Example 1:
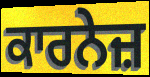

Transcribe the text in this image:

ਕਾਰਨੇਜ਼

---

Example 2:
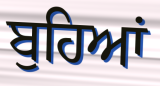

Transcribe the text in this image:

ਬੁਹਿਆਂ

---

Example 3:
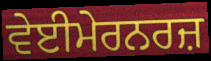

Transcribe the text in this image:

ਵੇਈਮੇਰਨਰਜ਼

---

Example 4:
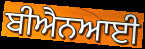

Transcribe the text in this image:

ਬੀਐਨਆਈ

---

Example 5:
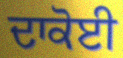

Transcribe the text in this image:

ਦਾਕੋਈ